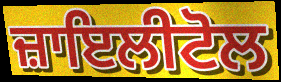
ਜ਼ਾਇਲੀਟੋਲ